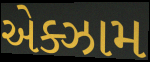
એક્ઝામ